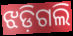
ଝଡ଼ିଗଲି